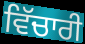
ਵਿੱਚਾਰੀ